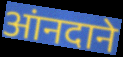
आंनदाने